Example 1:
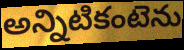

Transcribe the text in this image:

అన్నిటికంటెను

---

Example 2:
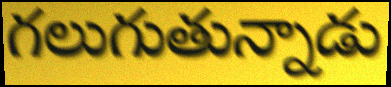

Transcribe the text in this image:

గలుగుతున్నాడు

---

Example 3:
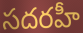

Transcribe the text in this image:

సదరహీ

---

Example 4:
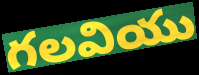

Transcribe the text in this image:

గలవియు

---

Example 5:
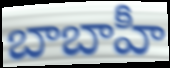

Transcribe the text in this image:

బాబాహీ